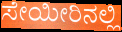
ಸೇಯೀರಿನಲ್ಲಿ